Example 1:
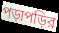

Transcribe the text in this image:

পড়াপড়ির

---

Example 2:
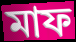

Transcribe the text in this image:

মাফ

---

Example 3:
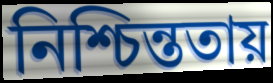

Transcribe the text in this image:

নিশ্চিন্ততায়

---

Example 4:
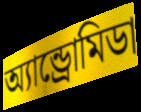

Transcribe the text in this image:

অ্যান্ড্রোমিডা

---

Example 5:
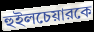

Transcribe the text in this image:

হুইলচেয়ারকে